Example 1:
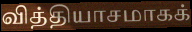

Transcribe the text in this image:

வித்தியாசமாகக்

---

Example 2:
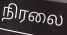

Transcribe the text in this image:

நிரலை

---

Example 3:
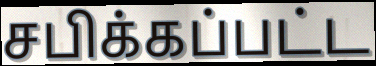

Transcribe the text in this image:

சபிக்கப்பட்ட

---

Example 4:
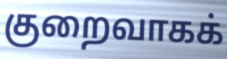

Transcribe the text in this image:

குறைவாகக்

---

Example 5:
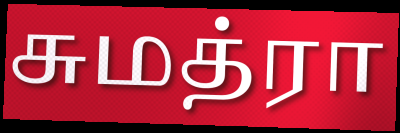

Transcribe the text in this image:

சுமத்ரா